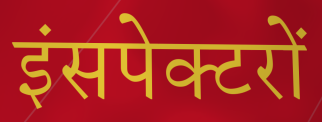
इंसपेक्टरों